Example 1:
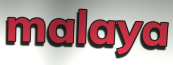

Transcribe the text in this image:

malaya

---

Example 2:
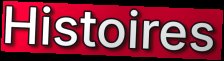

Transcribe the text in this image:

Histoires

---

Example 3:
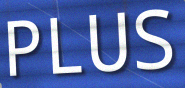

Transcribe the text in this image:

PLUS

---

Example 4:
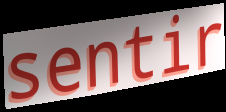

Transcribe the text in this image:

sentir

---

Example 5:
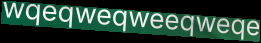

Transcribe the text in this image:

wqeqweqweeqweqe